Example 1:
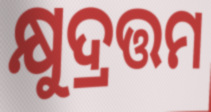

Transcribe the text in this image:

କ୍ଷୁଦ୍ରତ୍ତମ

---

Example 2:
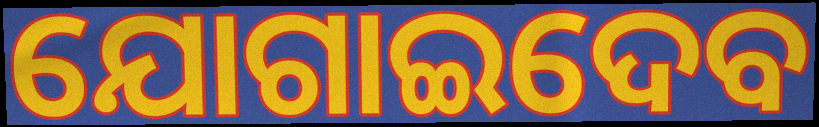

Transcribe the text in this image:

ଯୋଗାଇଦେବ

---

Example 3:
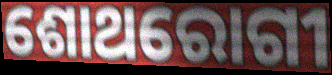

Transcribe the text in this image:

ଶୋଥରୋଗୀ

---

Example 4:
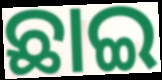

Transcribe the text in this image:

ଛାଇ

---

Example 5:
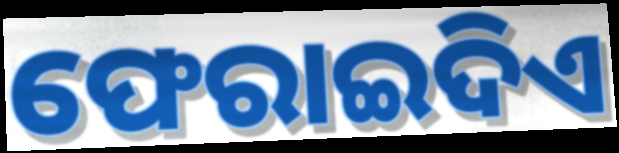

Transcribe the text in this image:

ଫେରାଇଦିଏ